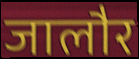
जालौर